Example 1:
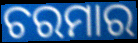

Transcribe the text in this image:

ଚରମାର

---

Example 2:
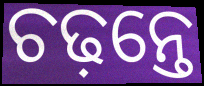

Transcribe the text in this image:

ଚଢ଼ନ୍ତେ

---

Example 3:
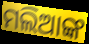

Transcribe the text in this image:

ମଲିଆଙ୍କ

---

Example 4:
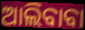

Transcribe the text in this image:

ଆଲିବାବା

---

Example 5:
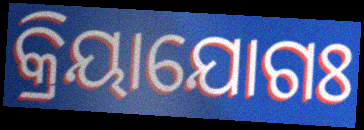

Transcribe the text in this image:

କ୍ରିୟାଯୋଗଃ